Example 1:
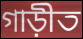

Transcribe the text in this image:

গাড়ীত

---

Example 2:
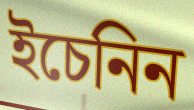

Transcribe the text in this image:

ইচেনিন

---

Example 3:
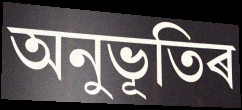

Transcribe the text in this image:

অনুভূতিৰ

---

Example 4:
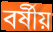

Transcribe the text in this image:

বৰ্ষীয়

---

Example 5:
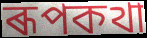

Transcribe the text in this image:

ৰূপকথা